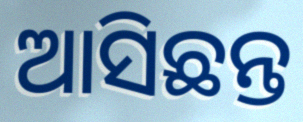
ଆସିଛନ୍ତ